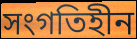
সংগতিহীন